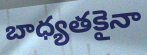
బాధ్యతకైనా